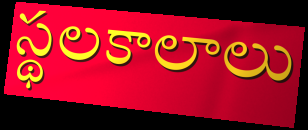
స్థలకాలాలు